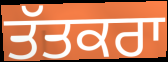
ਤੱਤਕਰਾ